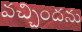
వచ్చిందను